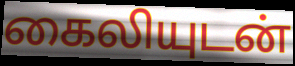
கைலியுடன்